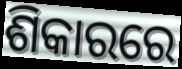
ଶିକାରରେ